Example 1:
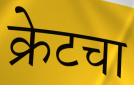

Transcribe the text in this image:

क्रेटचा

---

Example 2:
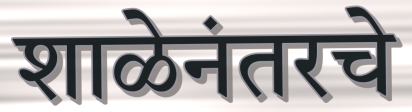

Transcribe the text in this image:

शाळेनंतरचे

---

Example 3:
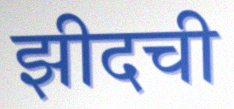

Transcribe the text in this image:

झीदची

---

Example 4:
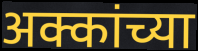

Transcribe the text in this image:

अक्कांच्या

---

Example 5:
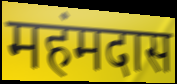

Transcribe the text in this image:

महंमदास